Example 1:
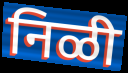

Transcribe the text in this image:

निळी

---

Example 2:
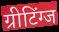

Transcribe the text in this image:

ग्रीटिंग्ज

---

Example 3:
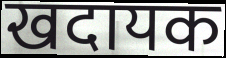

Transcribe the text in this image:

खदायक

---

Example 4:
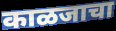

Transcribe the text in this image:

काळजाचा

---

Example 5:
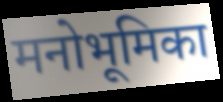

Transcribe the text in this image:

मनोभूमिका